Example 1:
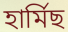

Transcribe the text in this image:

হাৰ্মিছ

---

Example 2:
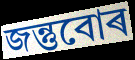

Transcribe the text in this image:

জন্তুবোৰ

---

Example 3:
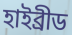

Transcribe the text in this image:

হাইব্ৰীড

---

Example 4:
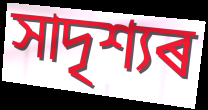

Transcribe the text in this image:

সাদৃশ্যৰ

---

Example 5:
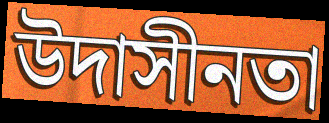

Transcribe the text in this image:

উদাসীনতা